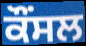
ਕੌਂਸਲ